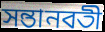
সন্তানবতী